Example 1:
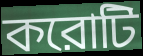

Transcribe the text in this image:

করোটি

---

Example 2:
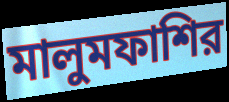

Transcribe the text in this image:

মালুমফাশির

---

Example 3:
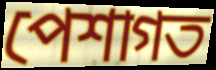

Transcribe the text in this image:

পেশাগত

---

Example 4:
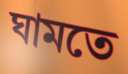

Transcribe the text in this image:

ঘামতে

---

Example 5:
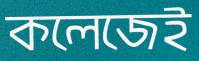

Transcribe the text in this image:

কলেজেই